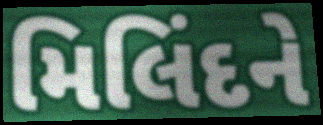
મિલિંદને